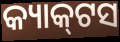
କ୍ୟାକ୍‌ଟସ